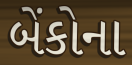
બેંકોના